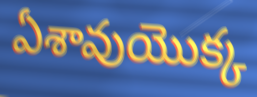
ఏశావుయొక్క